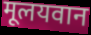
मूलयवान